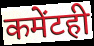
कमेंटही